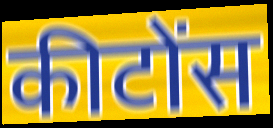
कीटोंस